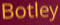
Botley